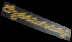
ద్యోతకమగుచున్నవి